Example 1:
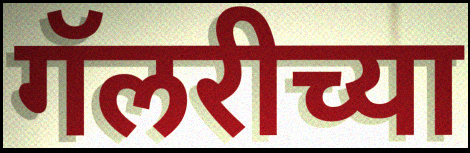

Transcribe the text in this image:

गॅलरीच्या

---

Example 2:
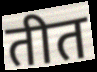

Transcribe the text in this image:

तीत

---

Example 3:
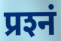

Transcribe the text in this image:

प्रश्‍नं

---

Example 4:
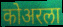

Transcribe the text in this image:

कोअरला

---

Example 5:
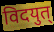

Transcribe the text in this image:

विदयुत्